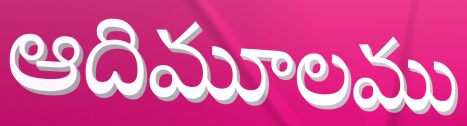
ఆదిమూలము